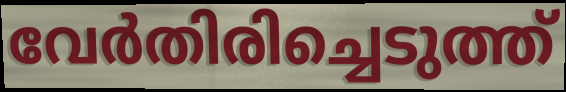
വേർതിരിച്ചെടുത്ത്